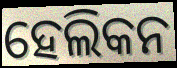
ହେଲିକନ